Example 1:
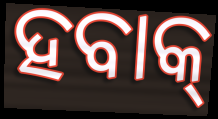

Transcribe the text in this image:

ହବାକ୍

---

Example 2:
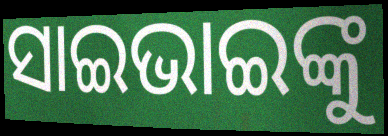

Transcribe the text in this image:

ସାଇଭାଇଙ୍କୁ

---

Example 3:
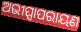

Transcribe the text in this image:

ଅଭୀପ୍ସାପରାୟଣ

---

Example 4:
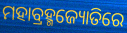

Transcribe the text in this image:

ମହାବ୍ରହ୍ମଜ୍ୟୋତିରେ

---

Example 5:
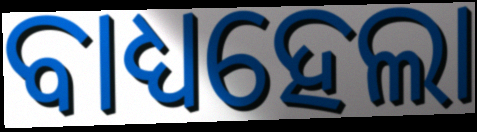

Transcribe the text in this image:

ବାଧ୍ୟହେଲା